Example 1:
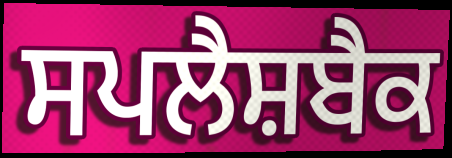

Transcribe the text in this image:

ਸਪਲੈਸ਼ਬੈਕ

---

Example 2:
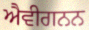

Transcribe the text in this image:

ਐਵੀਗਨਨ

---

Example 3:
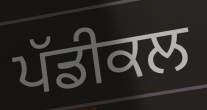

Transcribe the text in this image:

ਪੱਡੀਕਲ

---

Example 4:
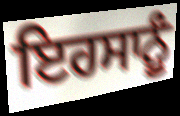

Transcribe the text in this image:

ਇਹਸਾਨੂੰ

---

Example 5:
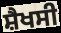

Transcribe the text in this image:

ਸ਼ੈਖਸੀ